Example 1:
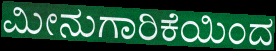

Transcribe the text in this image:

ಮೀನುಗಾರಿಕೆಯಿಂದ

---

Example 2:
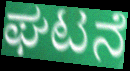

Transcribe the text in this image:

ಘಟನೆ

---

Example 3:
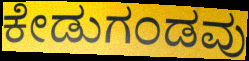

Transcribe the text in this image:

ಕೇಡುಗಂಡವು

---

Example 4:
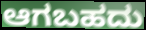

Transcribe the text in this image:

ಆಗಬಹದು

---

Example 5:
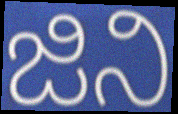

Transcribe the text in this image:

ಜಿನಿ